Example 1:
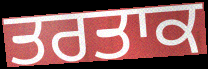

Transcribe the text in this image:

ਤਰਤਾਕ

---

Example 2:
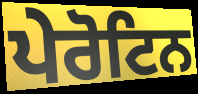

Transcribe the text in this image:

ਪੇਰੋਟਿਨ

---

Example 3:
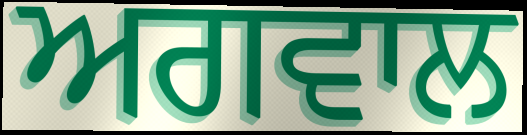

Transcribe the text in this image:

ਅਗਵਾਲ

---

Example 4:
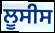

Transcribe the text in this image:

ਲੂਸੀਸ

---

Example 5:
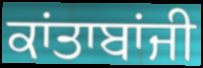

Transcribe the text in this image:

ਕਾਂਤਾਬਾਂਜੀ